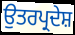
ਉਤਰਪ੍ਰਦੇਸ਼